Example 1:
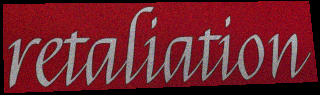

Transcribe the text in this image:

retaliation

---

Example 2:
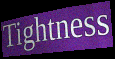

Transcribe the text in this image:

Tightness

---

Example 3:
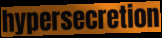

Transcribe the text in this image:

hypersecretion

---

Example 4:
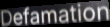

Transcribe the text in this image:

Defamation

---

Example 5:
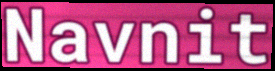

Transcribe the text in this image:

Navnit